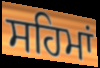
ਸਹਿਮਾਂ